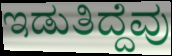
ಇಡುತಿದ್ದೆವು